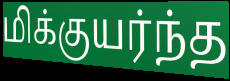
மிக்குயர்ந்த